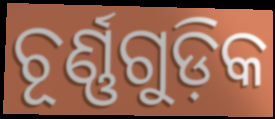
ଚୂର୍ଣ୍ଣଗୁଡ଼ିକ